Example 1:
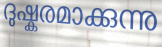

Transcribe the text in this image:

ദുഷ്കരമാക്കുന്നു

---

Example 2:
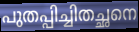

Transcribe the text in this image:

പുതപ്പിച്ചിതച്ഛനെ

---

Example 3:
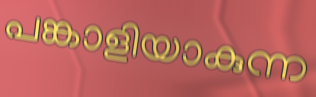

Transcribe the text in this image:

പങ്കാളിയാകുന്ന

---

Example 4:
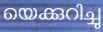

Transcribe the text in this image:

യെക്കുറിച്ചു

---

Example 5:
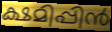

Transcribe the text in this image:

ക്ഷമിപ്പിൻ